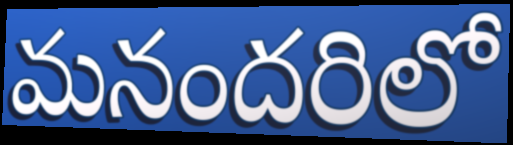
మనందరిలో